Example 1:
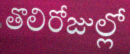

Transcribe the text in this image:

తొలిరోజుల్లో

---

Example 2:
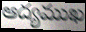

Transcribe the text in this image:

ఆద్యముఖ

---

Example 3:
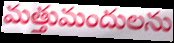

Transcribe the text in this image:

మత్తుమందులను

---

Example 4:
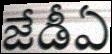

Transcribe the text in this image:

జేడీఏ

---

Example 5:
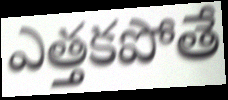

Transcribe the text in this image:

ఎత్తకపోతే